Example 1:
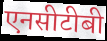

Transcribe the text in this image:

एनसीटीबी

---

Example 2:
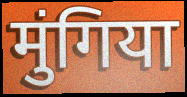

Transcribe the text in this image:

मुंगिया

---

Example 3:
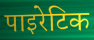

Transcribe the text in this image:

पाइरेटिक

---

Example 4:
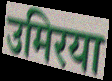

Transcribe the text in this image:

उमिरया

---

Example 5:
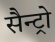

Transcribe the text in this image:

सैन्ट्रो